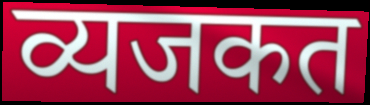
व्यजकत